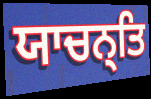
ਯਾਚਨ੍ਤਿ